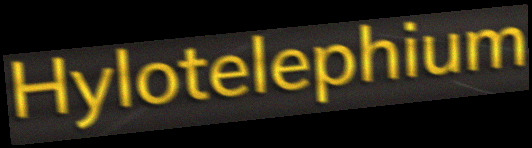
Hylotelephium